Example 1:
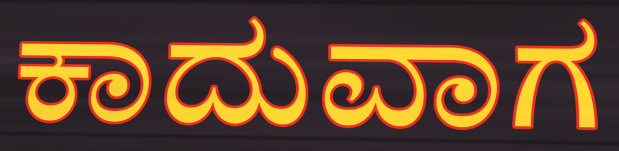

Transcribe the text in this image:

ಕಾದುವಾಗ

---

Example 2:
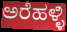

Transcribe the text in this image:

ಅರೆಹಳ್ಳಿ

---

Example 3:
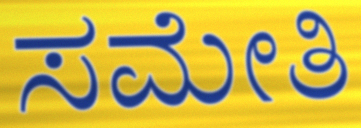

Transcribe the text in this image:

ಸಮೇತಿ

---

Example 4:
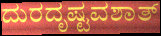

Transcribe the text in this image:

ದುರದೃಷ್ಟವಶಾತ್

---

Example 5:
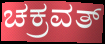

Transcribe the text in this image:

ಚಕ್ರವತ್